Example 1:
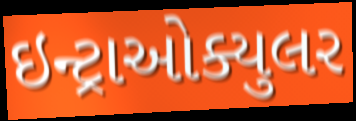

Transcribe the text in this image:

ઇન્ટ્રાઓક્યુલર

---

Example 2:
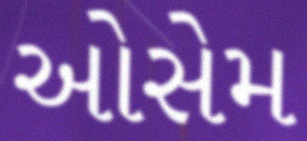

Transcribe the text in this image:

ઓસેમ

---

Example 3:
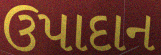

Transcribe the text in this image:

ઉપાદાન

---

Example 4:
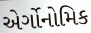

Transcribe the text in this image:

એર્ગોનોમિક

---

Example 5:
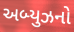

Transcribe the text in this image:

અબ્યુઝનો